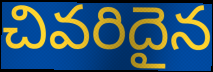
చివరిదైన